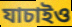
যাচাইও